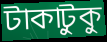
টাকাটুকু